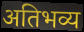
अतिभव्य